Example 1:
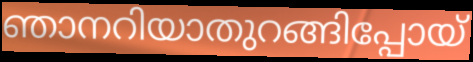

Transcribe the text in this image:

ഞാനറിയാതുറങ്ങിപ്പോയ്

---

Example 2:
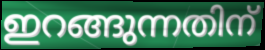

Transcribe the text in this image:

ഇറങ്ങുന്നതിന്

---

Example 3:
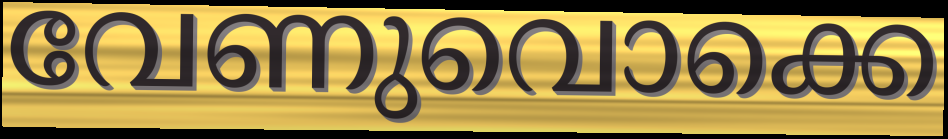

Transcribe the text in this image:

വേണുവൊക്കെ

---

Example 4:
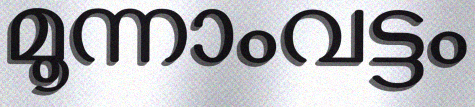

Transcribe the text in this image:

മൂന്നാംവട്ടം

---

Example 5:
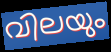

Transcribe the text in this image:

വിലയും